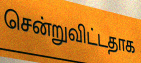
சென்றுவிட்டதாக